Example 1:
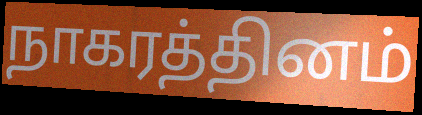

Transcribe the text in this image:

நாகரத்தினம்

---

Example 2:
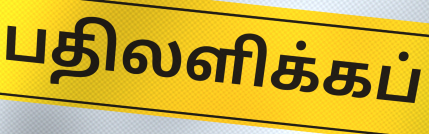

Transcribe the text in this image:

பதிலளிக்கப்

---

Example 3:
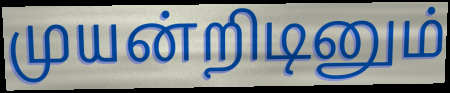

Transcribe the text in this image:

முயன்றிடினும்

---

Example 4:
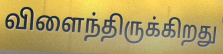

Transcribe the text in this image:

விளைந்திருக்கிறது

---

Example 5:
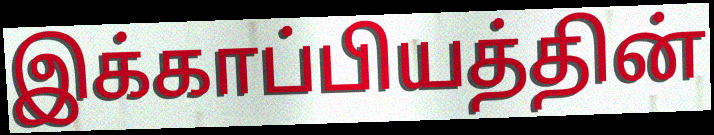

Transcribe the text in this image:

இக்காப்பியத்தின்